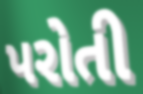
પરોતી